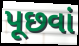
પૂછવાં